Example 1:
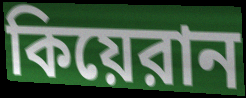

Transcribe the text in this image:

কিয়েরান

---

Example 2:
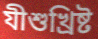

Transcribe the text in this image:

যীশুখ্রিষ্ট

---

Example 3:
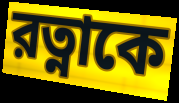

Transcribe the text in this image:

রত্নাকে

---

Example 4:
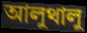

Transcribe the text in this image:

আলুথালু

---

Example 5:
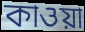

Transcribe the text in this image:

কাওয়া